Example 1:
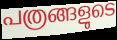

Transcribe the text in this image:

പത്രങ്ങളുടെ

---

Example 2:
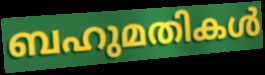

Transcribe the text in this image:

ബഹുമതികൾ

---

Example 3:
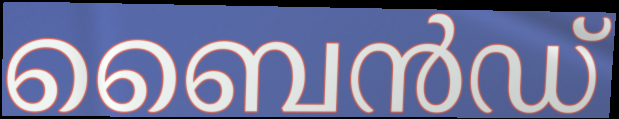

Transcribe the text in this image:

ബൈൻഡ്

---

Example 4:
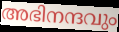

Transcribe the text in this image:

അഭിനന്ദവും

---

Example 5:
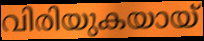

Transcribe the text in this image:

വിരിയുകയായ്